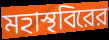
মহাস্থবিরের